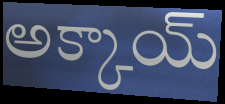
అక్కాయ్